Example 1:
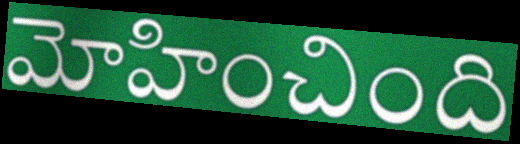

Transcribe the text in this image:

మోహించింది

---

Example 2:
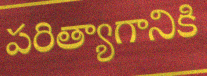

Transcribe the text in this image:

పరిత్యాగానికి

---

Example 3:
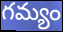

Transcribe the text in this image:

గమ్యం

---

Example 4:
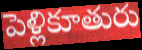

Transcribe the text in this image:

పెళ్లికూతురు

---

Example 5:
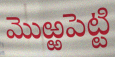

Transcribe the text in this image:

మొఱ్ఱపెట్టి